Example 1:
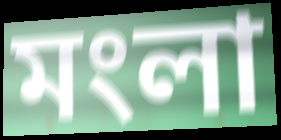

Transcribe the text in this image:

মংলা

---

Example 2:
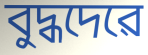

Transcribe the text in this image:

বুদ্ধদেৱে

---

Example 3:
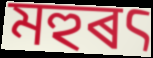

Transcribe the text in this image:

মহুৰৎ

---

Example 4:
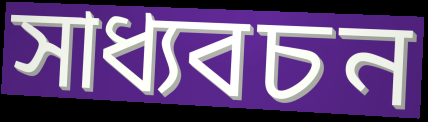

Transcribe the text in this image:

সাধ্যবচন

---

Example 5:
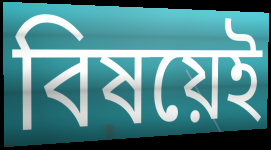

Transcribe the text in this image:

বিষয়েই